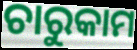
ଚାରୁକାମ